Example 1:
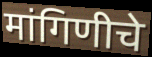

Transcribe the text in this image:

मांगिणीचे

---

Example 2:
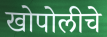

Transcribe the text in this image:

खोपोलीचे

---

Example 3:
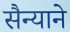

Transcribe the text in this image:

सैन्याने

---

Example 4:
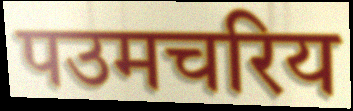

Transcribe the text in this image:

पउमचरिय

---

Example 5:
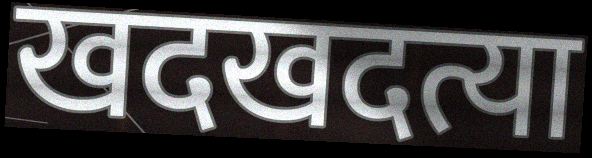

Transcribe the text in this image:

खदखदत्या